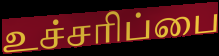
உச்சரிப்பை